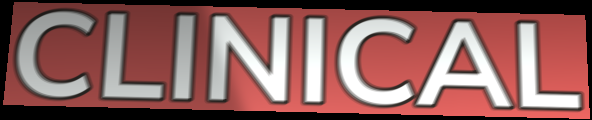
CLINICAL